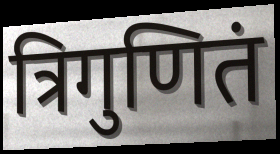
त्रिगुणितं